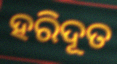
ହରିଦୂତ